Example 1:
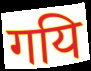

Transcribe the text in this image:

गयि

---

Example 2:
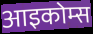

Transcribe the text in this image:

आइकोम्स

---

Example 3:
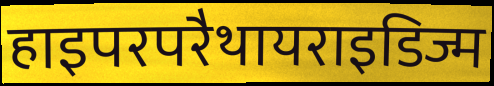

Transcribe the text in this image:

हाइपरपरैथायराइडिज्म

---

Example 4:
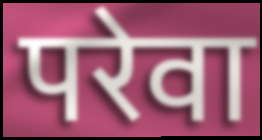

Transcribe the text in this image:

परेवा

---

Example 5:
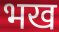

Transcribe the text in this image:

भख